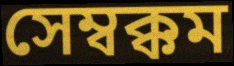
সেম্বক্কম